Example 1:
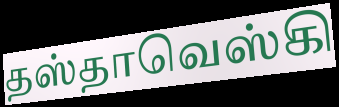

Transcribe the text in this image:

தஸ்தாவெஸ்கி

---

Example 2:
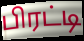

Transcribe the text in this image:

பிரட்டி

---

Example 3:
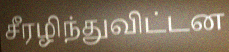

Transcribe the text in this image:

சீரழிந்துவிட்டன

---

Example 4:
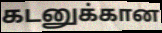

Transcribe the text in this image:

கடனுக்கான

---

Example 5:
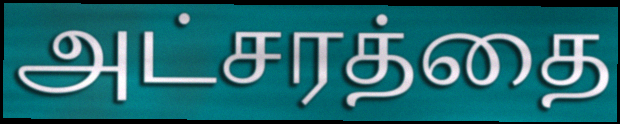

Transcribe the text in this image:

அட்சரத்தை